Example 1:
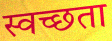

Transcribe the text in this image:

स्वच्छता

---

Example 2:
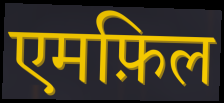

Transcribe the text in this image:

एमफ़िल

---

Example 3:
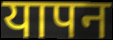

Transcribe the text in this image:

यापन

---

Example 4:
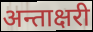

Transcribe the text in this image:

अन्ताक्षरी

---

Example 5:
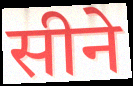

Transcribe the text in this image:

सीने